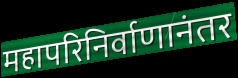
महापरिनिर्वाणानंतर